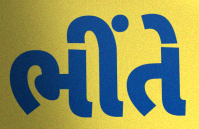
ભીંતે